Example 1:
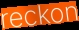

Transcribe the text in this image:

reckon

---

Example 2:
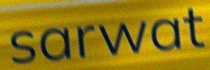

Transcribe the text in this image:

sarwat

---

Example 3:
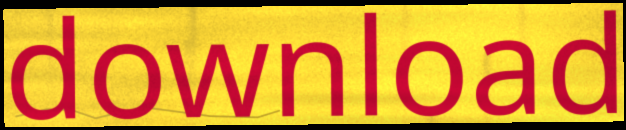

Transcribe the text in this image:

download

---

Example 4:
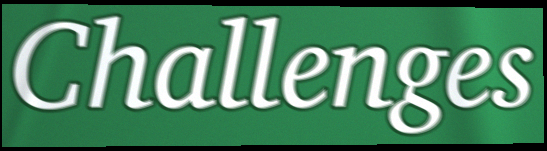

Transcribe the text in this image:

Challenges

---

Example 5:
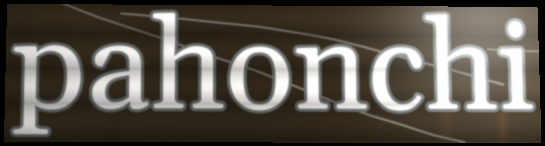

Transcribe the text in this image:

pahonchi